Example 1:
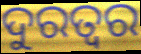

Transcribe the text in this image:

ଦୁରତ୍ଵର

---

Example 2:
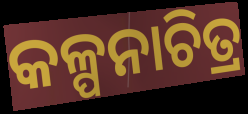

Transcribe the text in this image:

କଳ୍ପନାଚିତ୍ର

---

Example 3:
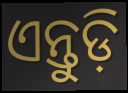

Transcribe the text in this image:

ଏନ୍ତୁଡ଼ି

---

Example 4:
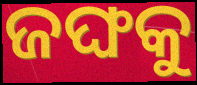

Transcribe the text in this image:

ଜଙ୍ଘକୁ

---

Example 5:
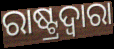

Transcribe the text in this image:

ରାଷ୍ଟ୍ରଦ୍ଵାରା